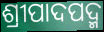
ଶ୍ରୀପାଦପଦ୍ମ